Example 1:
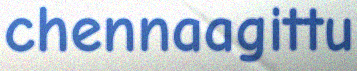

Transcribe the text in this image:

chennaagittu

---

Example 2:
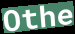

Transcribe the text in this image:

Othe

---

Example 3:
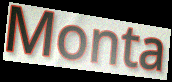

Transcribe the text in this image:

Monta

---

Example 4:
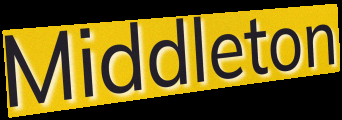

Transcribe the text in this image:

Middleton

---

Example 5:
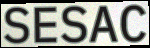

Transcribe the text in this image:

SESAC